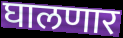
घालणार